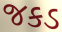
જકડ